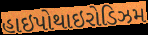
હાઇપોથાઇરોડિઝમ